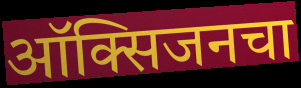
ऑक्सिजनचा